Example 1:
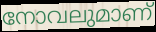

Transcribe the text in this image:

നോവലുമാണ്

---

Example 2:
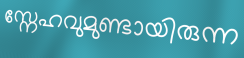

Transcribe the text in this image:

സ്നേഹവുമുണ്ടായിരുന്ന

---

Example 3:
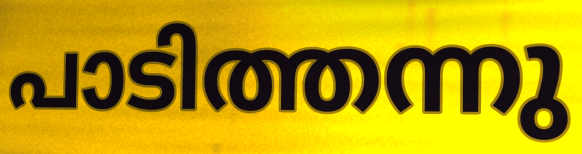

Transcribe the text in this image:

പാടിത്തന്നു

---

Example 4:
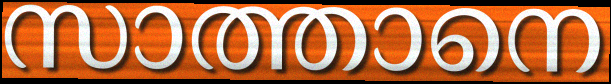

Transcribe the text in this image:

സാത്താനെ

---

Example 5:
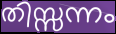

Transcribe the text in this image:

തിസ്സന്നം